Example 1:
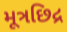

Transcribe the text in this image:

મૂત્રછિદ્ર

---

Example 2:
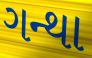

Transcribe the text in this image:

ગન્થા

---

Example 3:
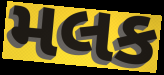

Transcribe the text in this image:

મલક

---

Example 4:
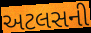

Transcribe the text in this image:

અટલસની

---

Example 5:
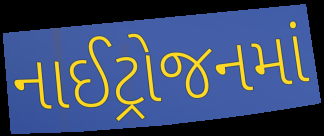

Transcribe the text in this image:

નાઈટ્રોજનમાં